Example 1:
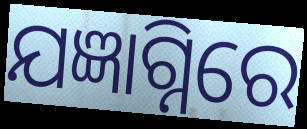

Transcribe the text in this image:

ଯଜ୍ଞାଗ୍ନିରେ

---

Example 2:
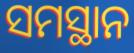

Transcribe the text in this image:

ସମସ୍ଥାନ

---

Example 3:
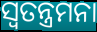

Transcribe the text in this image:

ସ୍ୱତନ୍ତ୍ରମନା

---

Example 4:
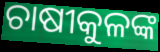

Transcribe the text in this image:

ଚାଷୀକୁଳଙ୍କ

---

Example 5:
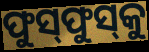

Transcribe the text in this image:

ଫୁସ୍‌ଫୁସ୍‌କୁ